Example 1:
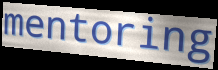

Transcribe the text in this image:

mentoring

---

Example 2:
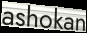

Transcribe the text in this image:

ashokan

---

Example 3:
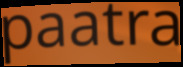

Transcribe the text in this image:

paatra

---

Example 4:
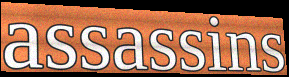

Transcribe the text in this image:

assassins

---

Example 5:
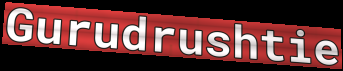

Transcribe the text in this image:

Gurudrushtie